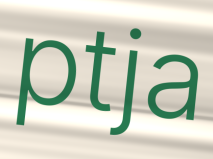
ptja